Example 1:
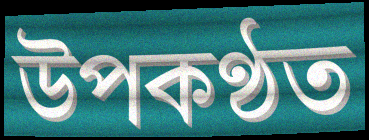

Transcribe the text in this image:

উপকণ্ঠত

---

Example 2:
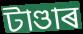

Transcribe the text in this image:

টাণ্ডাৰ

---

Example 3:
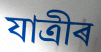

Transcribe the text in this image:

যাত্ৰীৰ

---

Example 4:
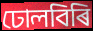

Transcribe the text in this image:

ঢোলবিৰি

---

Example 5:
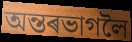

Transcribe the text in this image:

অন্তৰভাগলৈ